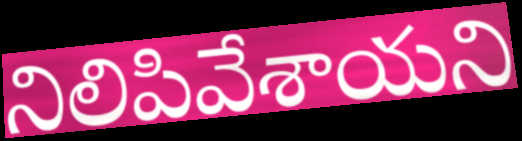
నిలిపివేశాయని